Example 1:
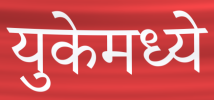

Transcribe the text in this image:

युकेमध्ये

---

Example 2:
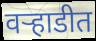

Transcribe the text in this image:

वऱ्हाडीत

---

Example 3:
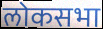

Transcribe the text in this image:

लोकसभा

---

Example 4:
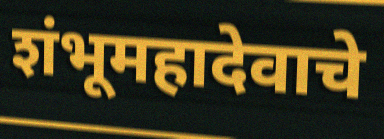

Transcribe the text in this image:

शंभूमहादेवाचे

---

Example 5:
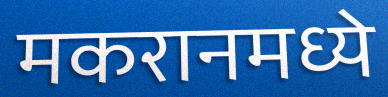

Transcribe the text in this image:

मकरानमध्ये